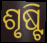
ଶୃଷ୍ଟି